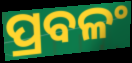
ପ୍ରବଳଂ